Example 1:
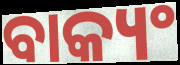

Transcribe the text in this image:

ବାକ୍ୟଂ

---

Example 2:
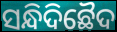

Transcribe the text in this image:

ସନ୍ଧିଦିଛୈଦ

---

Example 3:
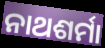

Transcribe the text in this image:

ନାଥଶର୍ମା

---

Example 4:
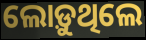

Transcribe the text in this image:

ଲୋଡ଼ୁଥିଲେ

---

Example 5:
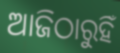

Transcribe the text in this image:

ଆଜିଠାରୁହିଁ